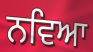
ਨਵਿਆ